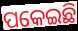
ପକେଇଛି